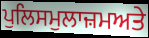
ਪੁਲਿਸਮੁਲਾਜ਼ਮਅਤੇ